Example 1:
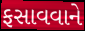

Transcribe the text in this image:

ફસાવવાને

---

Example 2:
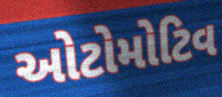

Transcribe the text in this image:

ઓટોમોટિવ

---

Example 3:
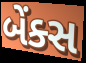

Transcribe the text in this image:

બેંક્સ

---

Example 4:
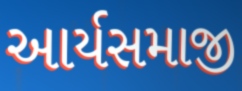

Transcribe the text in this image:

આર્યસમાજી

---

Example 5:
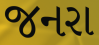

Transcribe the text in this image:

જનરા